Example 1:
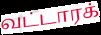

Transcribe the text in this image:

வட்டாரக்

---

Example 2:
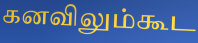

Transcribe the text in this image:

கனவிலும்கூட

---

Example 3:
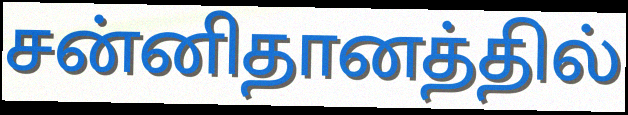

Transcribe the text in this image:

சன்னிதானத்தில்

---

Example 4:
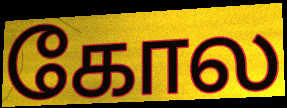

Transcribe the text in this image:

கோல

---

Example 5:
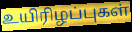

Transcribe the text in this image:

உயிரிழப்புகள்